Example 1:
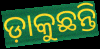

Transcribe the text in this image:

ଡ଼ାକୁଛନ୍ତି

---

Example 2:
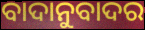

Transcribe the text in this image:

ବାଦାନୁବାଦର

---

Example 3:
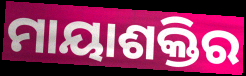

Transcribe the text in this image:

ମାୟାଶକ୍ତିର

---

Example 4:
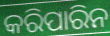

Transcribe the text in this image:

କରିପାରିନ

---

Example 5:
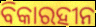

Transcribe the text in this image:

ବିକାରହୀନ